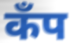
कॅंप